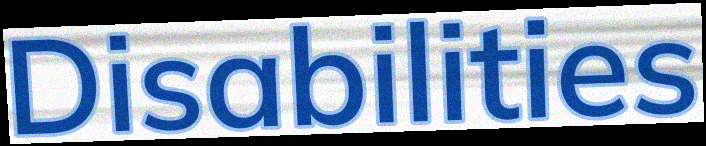
Disabilities